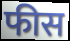
फीस